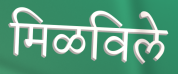
मिळविले